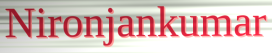
Nironjankumar